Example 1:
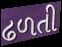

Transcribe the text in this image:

ઢળતી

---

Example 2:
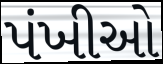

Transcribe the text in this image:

પંખીઓ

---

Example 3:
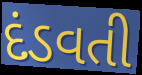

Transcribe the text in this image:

દંડવતી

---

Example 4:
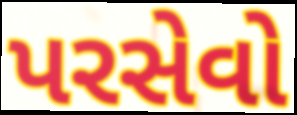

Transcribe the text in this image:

પરસેવો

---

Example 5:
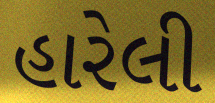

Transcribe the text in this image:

હારેલી